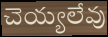
చెయ్యలేవు